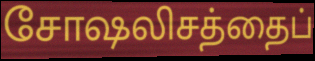
சோஷலிசத்தைப்